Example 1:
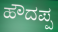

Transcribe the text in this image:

ಹೌದಪ್ಪ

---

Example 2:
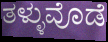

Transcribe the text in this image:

ತಳ್ಳುವೊಡೆ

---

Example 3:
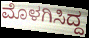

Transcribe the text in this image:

ಮೊಳಗಿಸಿದ್ದ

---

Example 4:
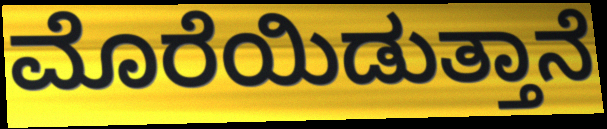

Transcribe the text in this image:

ಮೊರೆಯಿಡುತ್ತಾನೆ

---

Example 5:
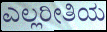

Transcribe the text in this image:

ಎಲ್ಲರೀತಿಯ